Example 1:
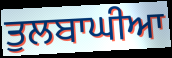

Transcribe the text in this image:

ਤੁਲਬਾਘੀਆ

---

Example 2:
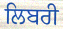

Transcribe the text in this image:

ਲਿਬਰੀ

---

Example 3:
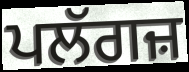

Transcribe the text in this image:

ਪਲੱਗਜ਼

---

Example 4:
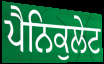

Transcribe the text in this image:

ਪੈਨਿਕੁਲੇਟ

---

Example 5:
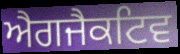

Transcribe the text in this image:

ਐਗਜੈਕਟਿਵ